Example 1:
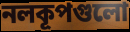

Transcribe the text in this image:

নলকূপগুলো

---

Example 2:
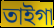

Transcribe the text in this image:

তাইগা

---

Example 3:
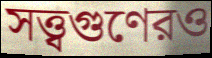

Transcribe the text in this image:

সত্ত্বগুণেরও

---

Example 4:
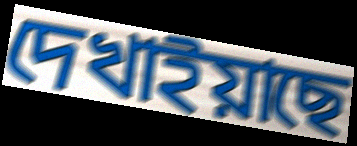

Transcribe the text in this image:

দেখাইয়াছে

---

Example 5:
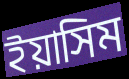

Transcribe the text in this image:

ইয়াসিম